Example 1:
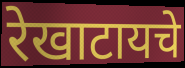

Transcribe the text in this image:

रेखाटायचे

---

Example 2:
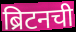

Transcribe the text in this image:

ब्रिटनची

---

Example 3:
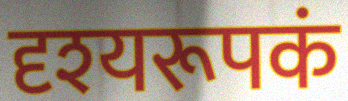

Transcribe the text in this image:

दृश्‍यरूपकं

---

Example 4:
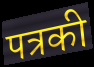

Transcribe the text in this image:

पत्रकी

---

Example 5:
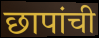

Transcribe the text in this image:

छापांची